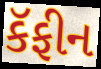
કૅફીન